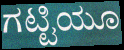
ಗಟ್ಟಿಯೂ